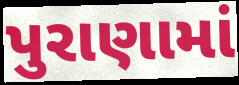
પુરાણામાં